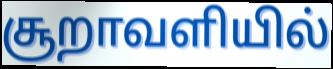
சூறாவளியில்